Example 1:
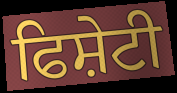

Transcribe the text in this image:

ਫਿਸ਼ੇਟੀ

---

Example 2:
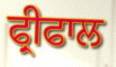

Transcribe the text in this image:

ਫ੍ਰੀਫਾਲ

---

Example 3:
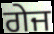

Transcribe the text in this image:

ਗੇਜ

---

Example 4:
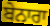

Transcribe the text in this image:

ਬੇਨਾਰਾ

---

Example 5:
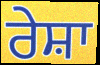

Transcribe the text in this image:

ਰੇਸ਼ਾ